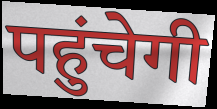
पहुंचेगी